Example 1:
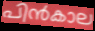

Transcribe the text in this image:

പിൻകാല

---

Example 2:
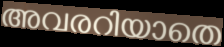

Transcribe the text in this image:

അവരറിയാതെ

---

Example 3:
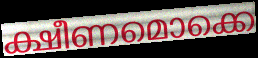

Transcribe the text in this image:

ക്ഷീണമൊക്കെ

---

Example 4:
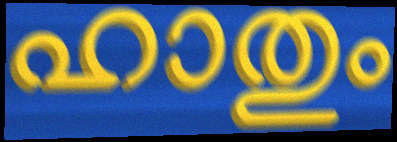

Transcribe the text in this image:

ഹാതും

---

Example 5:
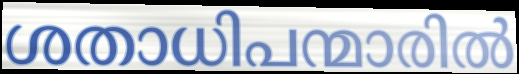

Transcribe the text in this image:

ശതാധിപന്മാരിൽ